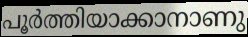
പൂർത്തിയാക്കാനാണു